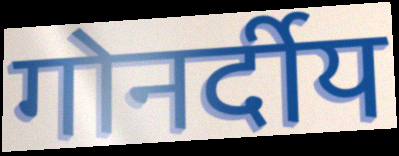
गोनर्दीय